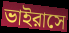
ভাইরাসে